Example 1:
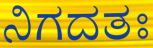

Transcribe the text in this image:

ನಿಗದತಃ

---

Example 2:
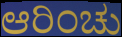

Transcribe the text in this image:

ಆರಿಂಚು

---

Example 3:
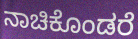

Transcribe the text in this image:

ನಾಚಿಕೊಂಡರೆ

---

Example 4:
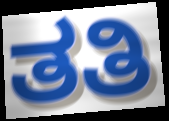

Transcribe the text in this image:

ತತಿ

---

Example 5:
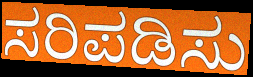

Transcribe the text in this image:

ಸರಿಪಡಿಸು